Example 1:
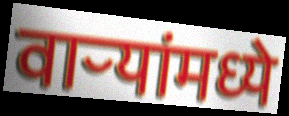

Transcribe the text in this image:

वाऱ्यांमध्ये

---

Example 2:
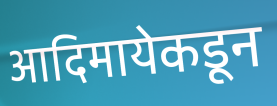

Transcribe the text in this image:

आदिमायेकडून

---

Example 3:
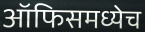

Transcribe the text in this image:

ऑफिसमध्येच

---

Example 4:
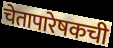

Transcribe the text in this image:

चेतापारेषकची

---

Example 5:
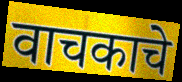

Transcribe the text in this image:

वाचकाचे